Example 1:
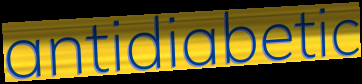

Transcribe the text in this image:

antidiabetic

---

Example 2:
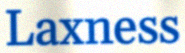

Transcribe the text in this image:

Laxness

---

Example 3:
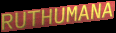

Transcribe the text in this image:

RUTHUMANA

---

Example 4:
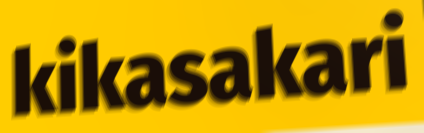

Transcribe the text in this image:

kikasakari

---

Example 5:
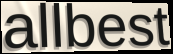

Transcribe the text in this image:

allbest